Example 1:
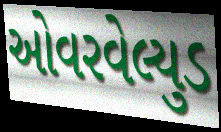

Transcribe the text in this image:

ઓવરવેલ્યુડ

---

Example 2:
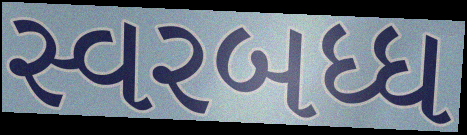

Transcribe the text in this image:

સ્વરબધ્ધ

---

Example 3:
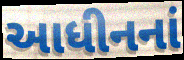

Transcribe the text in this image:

આધીનનાં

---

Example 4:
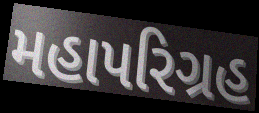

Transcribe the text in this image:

મહાપરિગ્રહ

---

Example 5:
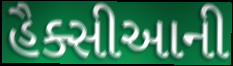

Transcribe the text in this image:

હૈક્સીઆની